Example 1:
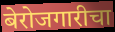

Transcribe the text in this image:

बेरोजगारीचा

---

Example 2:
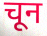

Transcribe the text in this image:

चून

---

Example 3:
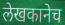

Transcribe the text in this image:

लेखकानेच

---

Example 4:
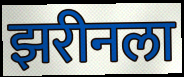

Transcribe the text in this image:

झरीनला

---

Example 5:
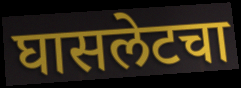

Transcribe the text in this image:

घासलेटचा